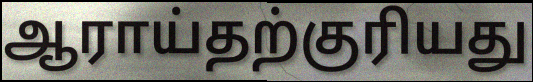
ஆராய்தற்குரியது